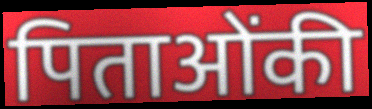
पिताओंकी